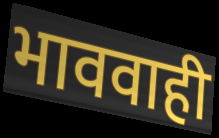
भाववाही